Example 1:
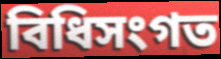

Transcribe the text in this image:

বিধিসংগত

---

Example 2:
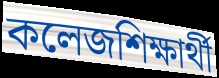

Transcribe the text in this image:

কলেজশিক্ষার্থী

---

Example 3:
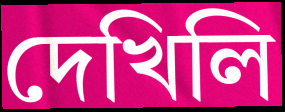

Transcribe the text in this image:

দেখিলি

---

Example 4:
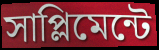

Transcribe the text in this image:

সাপ্লিমেন্টে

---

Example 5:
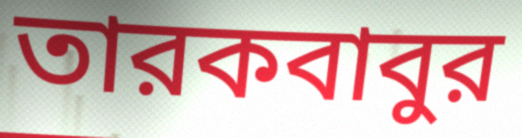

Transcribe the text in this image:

তারকবাবুর